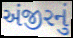
અંજીરનું